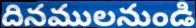
దినములనుండి